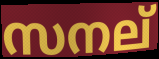
സനല്